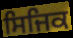
ਸਿਜਿਕ